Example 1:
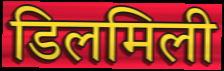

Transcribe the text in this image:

डिलमिली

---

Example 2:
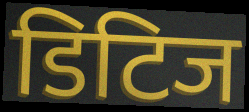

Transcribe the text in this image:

डिटिज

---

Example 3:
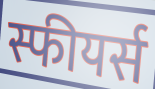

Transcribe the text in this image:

स्फीयर्स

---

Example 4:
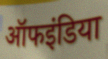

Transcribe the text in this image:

ऑफइंडिया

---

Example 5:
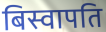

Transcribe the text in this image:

बिस्वापति